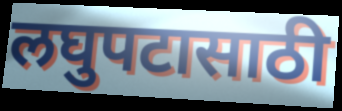
लघुपटासाठी